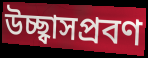
উচ্ছ্বাসপ্রবণ